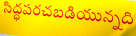
సిద్ధపరచబడియున్నది